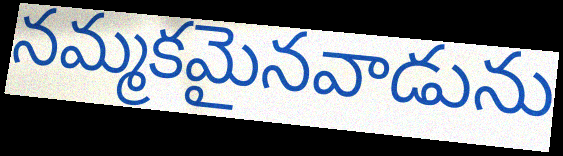
నమ్మకమైనవాడును